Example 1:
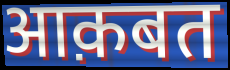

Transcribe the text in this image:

आक़बत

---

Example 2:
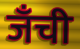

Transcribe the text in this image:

जँची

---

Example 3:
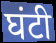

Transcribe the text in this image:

घंटी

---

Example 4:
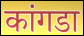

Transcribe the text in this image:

कांगडा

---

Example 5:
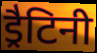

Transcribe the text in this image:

ड्रैटिनी